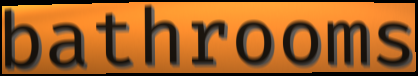
bathrooms